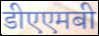
डीएएमबी